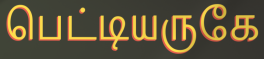
பெட்டியருகே